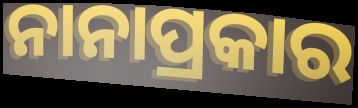
ନାନାପ୍ରକାର